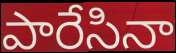
పారేసినా